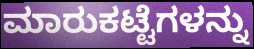
ಮಾರುಕಟ್ಟೆಗಳನ್ನು